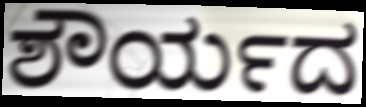
ಶೌರ್ಯದ